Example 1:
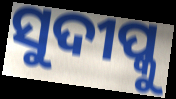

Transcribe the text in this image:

ସୁଦୀପ୍କୁ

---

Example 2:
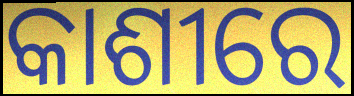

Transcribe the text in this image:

କାଶୀରେ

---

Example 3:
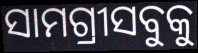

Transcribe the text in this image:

ସାମଗ୍ରୀସବୁକୁ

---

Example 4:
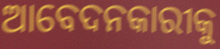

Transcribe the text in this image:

ଆବେଦନକାରୀକୁ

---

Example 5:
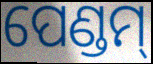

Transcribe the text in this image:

ପେଣ୍ଡମ୍